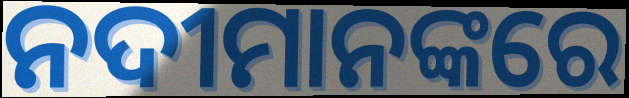
ନଦୀମାନଙ୍କରେ